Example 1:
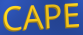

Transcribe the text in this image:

CAPE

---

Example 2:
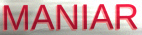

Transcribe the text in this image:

MANIAR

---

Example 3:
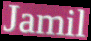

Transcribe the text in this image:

Jamil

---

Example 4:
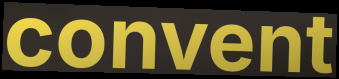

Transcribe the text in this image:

convent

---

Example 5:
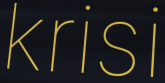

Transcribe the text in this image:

krisi